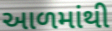
આળમાંથી